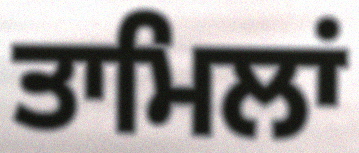
ਤਾਮਿਲਾਂ